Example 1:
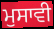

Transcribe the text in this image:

ਮੁਸਾਵੀ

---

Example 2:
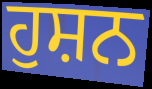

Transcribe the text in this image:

ਹੁਸ਼ਨ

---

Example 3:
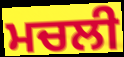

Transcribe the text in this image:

ਮਚਲੀ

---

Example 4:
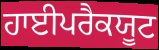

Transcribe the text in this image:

ਹਾਈਪਰੈਕਯੂਟ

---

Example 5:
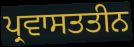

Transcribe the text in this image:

ਪ੍ਰਵਾਸਤਤੀਨ